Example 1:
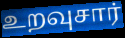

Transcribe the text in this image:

உறவுசார்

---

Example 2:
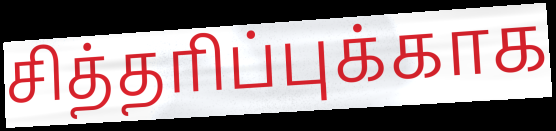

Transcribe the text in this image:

சித்தரிப்புக்காக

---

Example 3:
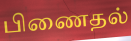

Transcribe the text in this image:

பிணைதல்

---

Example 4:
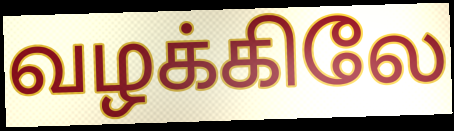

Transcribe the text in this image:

வழக்கிலே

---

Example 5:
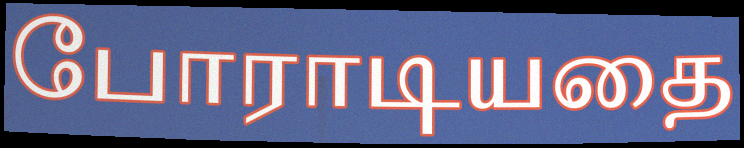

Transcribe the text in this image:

போராடியதை